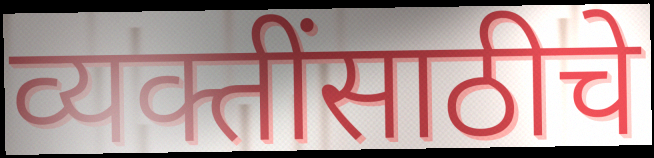
व्यक्तींसाठीचे